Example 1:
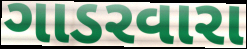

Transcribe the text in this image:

ગાડરવારા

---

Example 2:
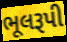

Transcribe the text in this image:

ભૂલરૂપી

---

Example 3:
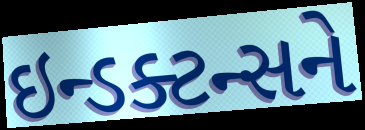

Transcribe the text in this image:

ઇન્ડક્ટન્સને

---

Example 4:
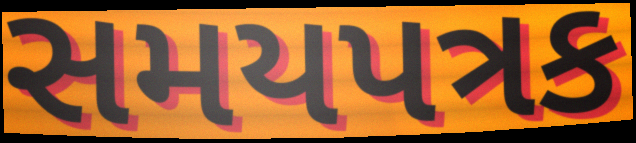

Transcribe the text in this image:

સમયપત્રક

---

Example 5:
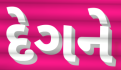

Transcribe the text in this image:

દેગને